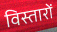
विस्तारों